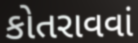
કોતરાવવાં